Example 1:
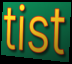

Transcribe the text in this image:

tist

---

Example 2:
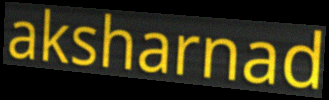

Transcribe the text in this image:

aksharnad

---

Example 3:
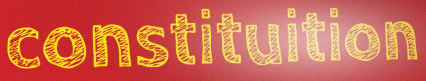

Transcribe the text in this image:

constituition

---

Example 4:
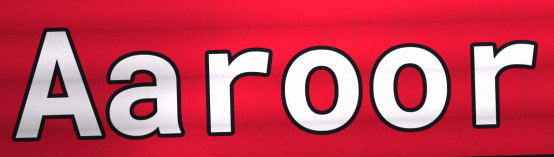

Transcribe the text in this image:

Aaroor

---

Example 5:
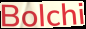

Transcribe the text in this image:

Bolchi